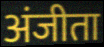
अंजीता